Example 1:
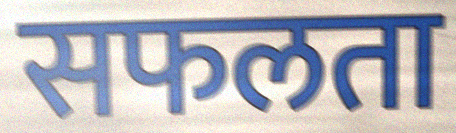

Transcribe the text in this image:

सफलता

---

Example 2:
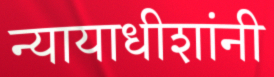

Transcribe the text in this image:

न्यायाधीशांनी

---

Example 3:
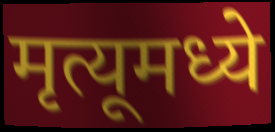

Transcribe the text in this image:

मृत्यूमध्ये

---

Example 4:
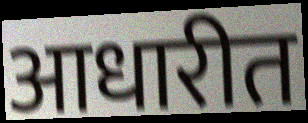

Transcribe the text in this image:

आधारीत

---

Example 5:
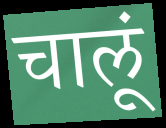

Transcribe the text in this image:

चालूं